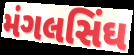
મંગલસિંઘ